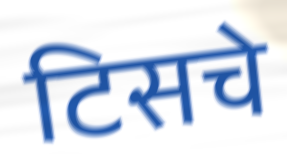
टिसचे